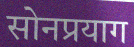
सोनप्रयाग